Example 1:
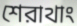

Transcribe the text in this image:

শেরাথাং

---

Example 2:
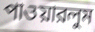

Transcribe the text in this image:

পাওয়ারলুম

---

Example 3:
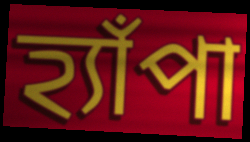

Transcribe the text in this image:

হ্যাঁপা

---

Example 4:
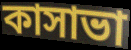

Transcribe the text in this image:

কাসাভা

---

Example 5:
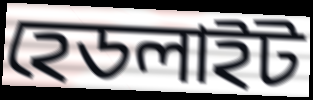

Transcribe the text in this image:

হেডলাইট